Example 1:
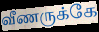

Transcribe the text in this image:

வீணருக்கே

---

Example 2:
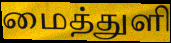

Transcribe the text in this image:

மைத்துளி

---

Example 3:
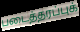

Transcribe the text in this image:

படைத்தரப்புக்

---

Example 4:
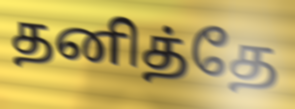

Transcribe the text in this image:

தனித்தே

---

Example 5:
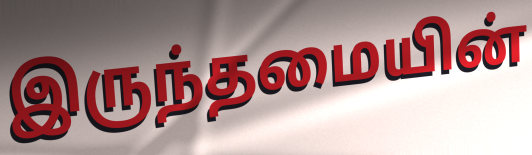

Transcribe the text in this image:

இருந்தமையின்